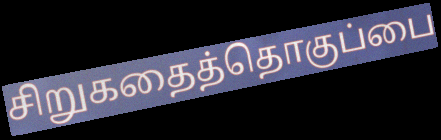
சிறுகதைத்தொகுப்பை